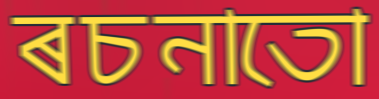
ৰচনাতো